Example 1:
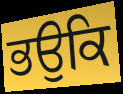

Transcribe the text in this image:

ਭਉਕਿ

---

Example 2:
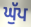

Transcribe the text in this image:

ਘੁੱਪ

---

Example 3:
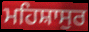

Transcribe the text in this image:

ਮਹਿਸ਼ਾਸੁਰ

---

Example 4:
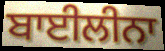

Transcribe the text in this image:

ਬਾਈਲੀਨਾ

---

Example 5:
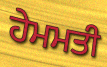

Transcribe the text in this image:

ਹੇਮਮਤੀ